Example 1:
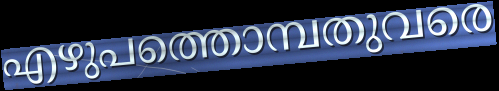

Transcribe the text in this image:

എഴുപത്തൊമ്പതുവരെ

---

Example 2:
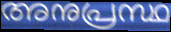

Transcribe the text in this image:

അനുപ്രസ്ഥ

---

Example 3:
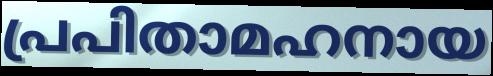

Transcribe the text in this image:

പ്രപിതാമഹനായ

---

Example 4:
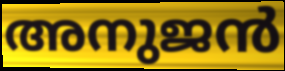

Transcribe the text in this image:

അനുജൻ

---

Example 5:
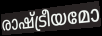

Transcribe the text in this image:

രാഷ്ട്രീയമോ